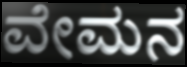
ವೇಮನ